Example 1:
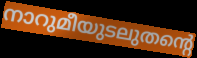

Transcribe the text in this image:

നാറുമീയുടലുതന്റെ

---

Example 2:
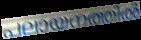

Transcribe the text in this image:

പലായനത്തിൽ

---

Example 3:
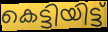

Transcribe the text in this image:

കെട്ടിയിട്ട്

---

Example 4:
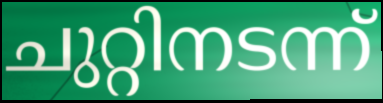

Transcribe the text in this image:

ചുറ്റിനടന്ന്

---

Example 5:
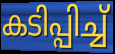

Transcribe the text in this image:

കടിപ്പിച്ച്